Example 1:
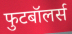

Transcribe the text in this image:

फुटबॉलर्स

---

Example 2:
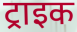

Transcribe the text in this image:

ट्राइक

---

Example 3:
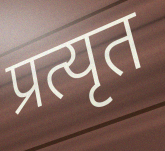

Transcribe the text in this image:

प्रत्यृत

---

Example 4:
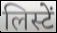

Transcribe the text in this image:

लिस्टें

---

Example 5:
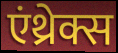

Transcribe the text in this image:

एंथ्रेक्स